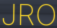
JRO